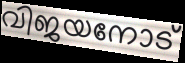
വിജയനോട്